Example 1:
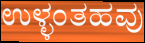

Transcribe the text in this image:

ಉಳ್ಳಂತಹವು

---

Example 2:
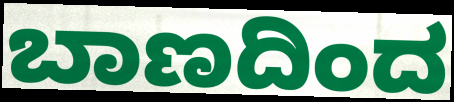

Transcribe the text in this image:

ಬಾಣದಿಂದ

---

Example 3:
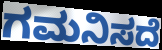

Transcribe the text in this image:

ಗಮನಿಸದೆ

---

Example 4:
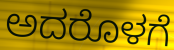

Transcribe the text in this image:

ಅದರೊಳಗೆ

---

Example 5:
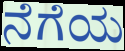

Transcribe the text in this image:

ನೆಗೆಯ